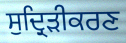
ਸੁਦ੍ਰਿੜੀਕਰਣ